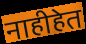
नाहीहेत